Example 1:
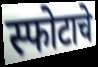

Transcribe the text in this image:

स्फोटाचे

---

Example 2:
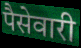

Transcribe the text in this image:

पैसेवारी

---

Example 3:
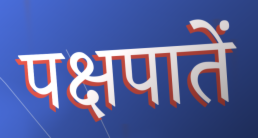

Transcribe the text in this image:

पक्षपातें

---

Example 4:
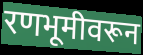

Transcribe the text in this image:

रणभूमीवरून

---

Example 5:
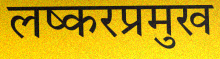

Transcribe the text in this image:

लष्करप्रमुख